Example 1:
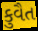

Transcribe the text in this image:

કુવૈત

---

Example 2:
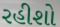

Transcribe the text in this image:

રહીશો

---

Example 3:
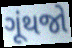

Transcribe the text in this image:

ગૂંથજો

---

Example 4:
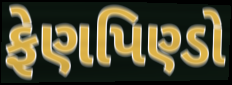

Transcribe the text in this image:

ફેણપિણ્ડો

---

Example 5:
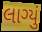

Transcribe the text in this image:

લાગ્યું